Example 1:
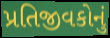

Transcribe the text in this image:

પ્રતિજીવકોનું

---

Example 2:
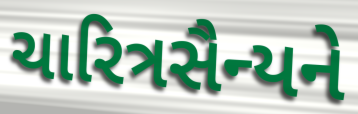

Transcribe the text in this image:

ચારિત્રસૈન્યને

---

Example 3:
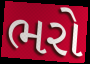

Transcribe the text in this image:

ભરો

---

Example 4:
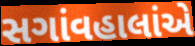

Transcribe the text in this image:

સગાંવહાલાંએ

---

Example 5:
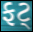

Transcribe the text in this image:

ફટ્